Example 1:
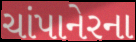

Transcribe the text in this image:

ચાંપાનેરના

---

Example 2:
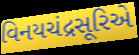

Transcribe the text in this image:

વિનયચંદ્રસૂરિએ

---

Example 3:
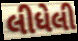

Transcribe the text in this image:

લીધેલી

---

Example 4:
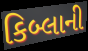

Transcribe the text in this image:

કિબ્લાની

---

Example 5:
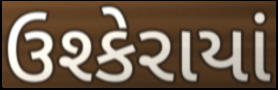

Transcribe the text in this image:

ઉશ્કેરાયાં